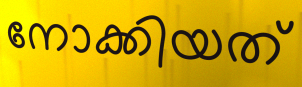
നോക്കിയത്